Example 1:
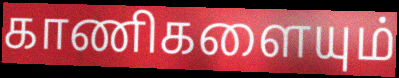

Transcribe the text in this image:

காணிகளையும்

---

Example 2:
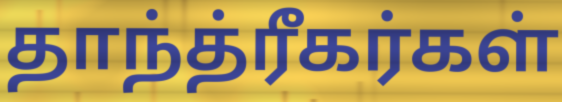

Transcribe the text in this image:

தாந்த்ரீகர்கள்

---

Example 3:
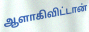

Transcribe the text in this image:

ஆளாகிவிட்டான்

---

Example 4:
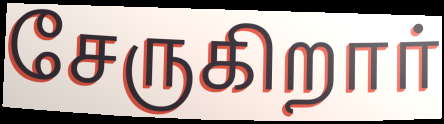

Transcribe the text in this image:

சேருகிறார்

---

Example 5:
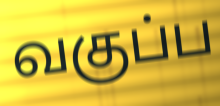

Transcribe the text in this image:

வகுப்ப